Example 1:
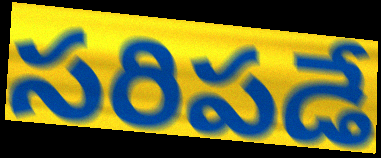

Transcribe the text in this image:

సరిపడే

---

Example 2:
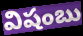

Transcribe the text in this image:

విషంబు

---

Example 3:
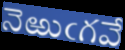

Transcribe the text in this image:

నెఱుఁగవే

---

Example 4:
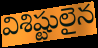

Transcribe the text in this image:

విశిష్టులైన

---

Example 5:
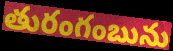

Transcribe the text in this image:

తురంగంబును